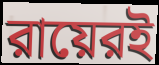
রায়েরই